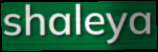
shaleya